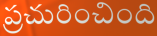
ప్రచురించింది